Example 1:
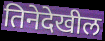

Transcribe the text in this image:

तिनेदेखील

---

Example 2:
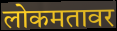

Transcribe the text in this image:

लोकमतावर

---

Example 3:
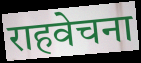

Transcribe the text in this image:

राहवेचना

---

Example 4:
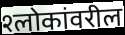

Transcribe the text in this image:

श्लोकांवरील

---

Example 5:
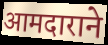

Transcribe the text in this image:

आमदाराने